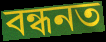
বন্ধনত